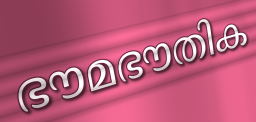
ഭൗമഭൗതിക